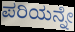
ಪರಿಯನ್ನೇ